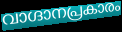
വാഗ്ദാനപ്രകാരം